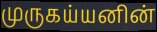
முருகய்யனின்